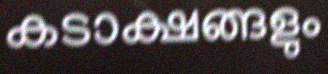
കടാക്ഷങ്ങളും